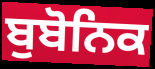
ਬੁਬੋਨਿਕ